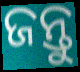
ଜନ୍ତୁ